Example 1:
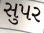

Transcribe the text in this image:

સુપર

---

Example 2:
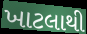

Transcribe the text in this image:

ખાટલાથી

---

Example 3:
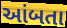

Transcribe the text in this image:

આંબતા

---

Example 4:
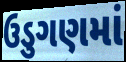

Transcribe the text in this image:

ઉડુગણમાં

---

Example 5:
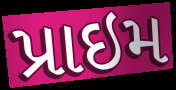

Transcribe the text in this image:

પ્રાઇમ